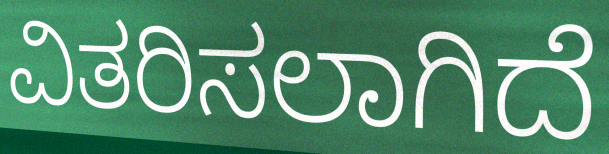
ವಿತರಿಸಲಾಗಿದೆ